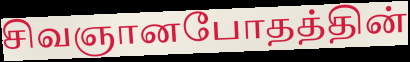
சிவஞானபோதத்தின்